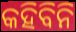
କହିବିନି